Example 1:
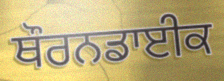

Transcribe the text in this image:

ਥੌਰਨਡਾਈਕ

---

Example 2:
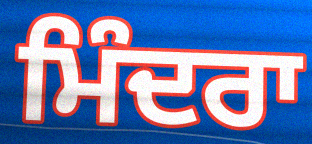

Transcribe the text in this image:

ਮਿੰਦਰਾ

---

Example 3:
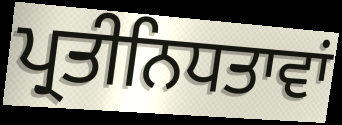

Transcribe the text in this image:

ਪ੍ਰਤੀਨਿਧਤਾਵਾਂ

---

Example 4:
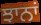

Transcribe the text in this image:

ਝਾਨਾਂ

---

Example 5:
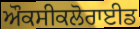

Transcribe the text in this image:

ਔਕਸੀਕਲੋਰਾਈਡ